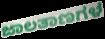
ಜಾಲತಾಣಗಳ